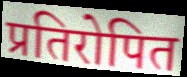
प्रतिरोपित